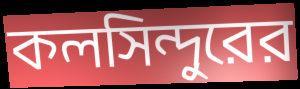
কলসিন্দুরের